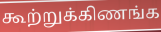
கூற்றுக்கிணங்க